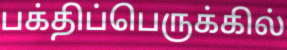
பக்திப்பெருக்கில்